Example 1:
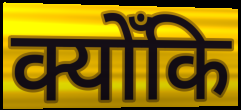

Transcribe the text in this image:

क्योँकि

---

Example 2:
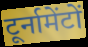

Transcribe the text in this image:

टूर्नामेंटों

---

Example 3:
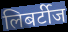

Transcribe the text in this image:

लिबर्टीज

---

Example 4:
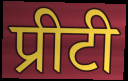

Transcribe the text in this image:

प्रीटी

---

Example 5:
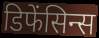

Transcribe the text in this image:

डिफेंसिन्स